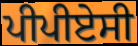
ਪੀਪੀਏਸੀ